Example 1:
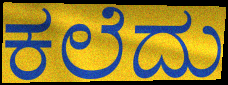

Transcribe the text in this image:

ಕಲೆದು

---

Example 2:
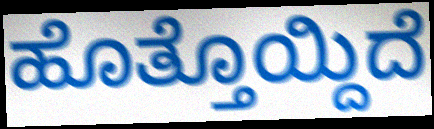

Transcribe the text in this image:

ಹೊತ್ತೊಯ್ದಿದೆ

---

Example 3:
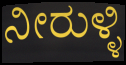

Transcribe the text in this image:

ನೀರುಳ್ಳಿ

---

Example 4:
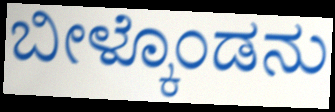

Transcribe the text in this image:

ಬೀಳ್ಕೊಂಡನು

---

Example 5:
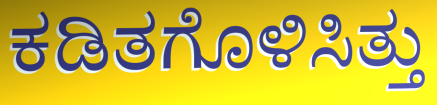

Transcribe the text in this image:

ಕಡಿತಗೊಳಿಸಿತ್ತು